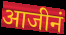
आजीनं